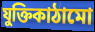
যুক্তিকাঠামো